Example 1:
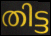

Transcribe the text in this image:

തിട്ട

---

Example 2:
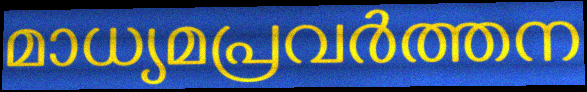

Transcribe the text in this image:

മാധ്യമപ്രവർത്തന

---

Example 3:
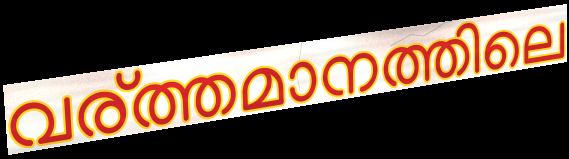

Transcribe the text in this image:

വര്ത്തമാനത്തിലെ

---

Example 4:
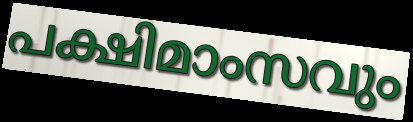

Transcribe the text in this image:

പക്ഷിമാംസവും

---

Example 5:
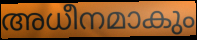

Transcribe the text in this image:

അധീനമാകും